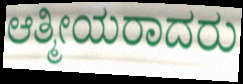
ಆತ್ಮೀಯರಾದರು